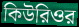
কিউরিওর